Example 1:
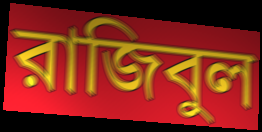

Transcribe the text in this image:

রাজিবুল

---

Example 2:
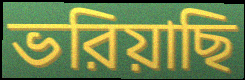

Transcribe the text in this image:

ভরিয়াছি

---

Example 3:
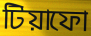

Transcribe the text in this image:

টিয়াফো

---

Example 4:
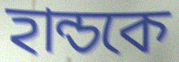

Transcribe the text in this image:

হান্ডকে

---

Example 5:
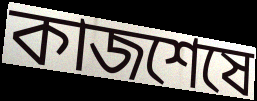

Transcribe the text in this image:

কাজশেষে